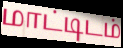
மாட்டிடம்